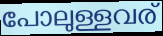
പോലുള്ളവര്